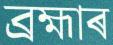
ব্ৰহ্মাৰ